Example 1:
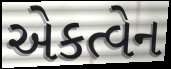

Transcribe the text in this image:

એકત્વેન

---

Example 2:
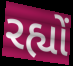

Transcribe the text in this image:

રહ્યોં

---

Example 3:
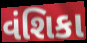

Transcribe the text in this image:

વંશિકા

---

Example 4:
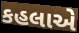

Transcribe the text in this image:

કહલાએ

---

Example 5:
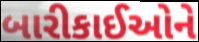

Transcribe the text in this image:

બારીકાઈઓને